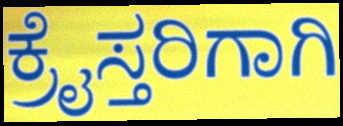
ಕ್ರೈಸ್ತರಿಗಾಗಿ